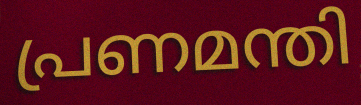
പ്രണമന്തി